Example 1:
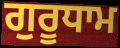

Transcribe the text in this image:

ਗੁਰੂਧਾਮ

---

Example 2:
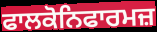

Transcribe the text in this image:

ਫਾਲਕੋਨਿਫਾਰਮਜ਼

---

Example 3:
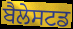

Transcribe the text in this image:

ਬੈਲੇਸਟਡ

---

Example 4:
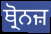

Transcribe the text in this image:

ਥ੍ਰੋਨਜ਼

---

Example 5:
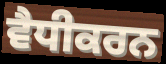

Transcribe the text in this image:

ਵੈਧੀਕਰਨ